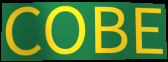
COBE